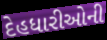
દેહધારીઓની